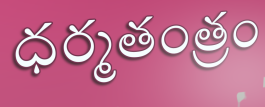
ధర్మతంత్రం